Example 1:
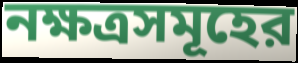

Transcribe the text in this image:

নক্ষত্রসমূহের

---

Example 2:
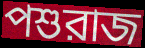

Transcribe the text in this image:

পশুরাজ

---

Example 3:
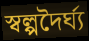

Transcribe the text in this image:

স্বল্পদৈর্ঘ্য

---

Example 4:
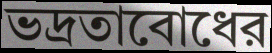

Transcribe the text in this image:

ভদ্রতাবোধের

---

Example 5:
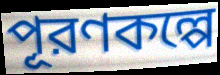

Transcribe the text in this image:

পূরণকল্পে